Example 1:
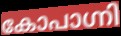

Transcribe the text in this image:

കോപാഗ്നി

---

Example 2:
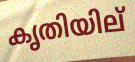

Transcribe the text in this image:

കൃതിയില്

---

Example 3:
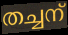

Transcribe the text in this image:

തച്ചന്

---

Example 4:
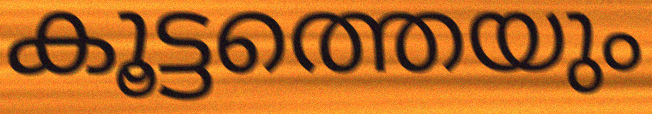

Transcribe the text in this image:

കൂട്ടത്തെയും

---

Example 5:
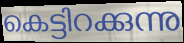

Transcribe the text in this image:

കെട്ടിറക്കുന്നു